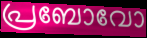
പ്രബോവോ